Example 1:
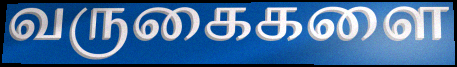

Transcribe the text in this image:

வருகைகளை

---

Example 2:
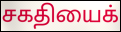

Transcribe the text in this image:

சகதியைக்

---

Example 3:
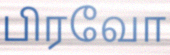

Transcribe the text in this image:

பிரவோ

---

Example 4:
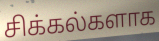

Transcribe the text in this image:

சிக்கல்களாக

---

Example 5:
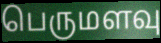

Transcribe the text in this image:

பெருமளவு